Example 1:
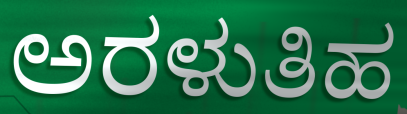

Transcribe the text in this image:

ಅರಳುತಿಹ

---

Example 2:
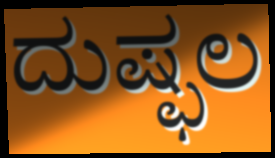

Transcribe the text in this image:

ದುಷ್ಫಲ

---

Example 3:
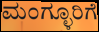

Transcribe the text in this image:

ಮಂಗ್ಳೂರಿಗೆ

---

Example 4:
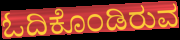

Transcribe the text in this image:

ಓದಿಕೊಂಡಿರುವ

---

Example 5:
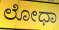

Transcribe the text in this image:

ಲೋಧಾ